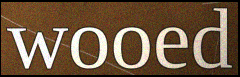
wooed